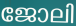
ജോലി